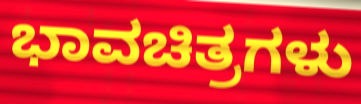
ಭಾವಚಿತ್ರಗಳು